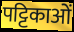
पट्टिकाओं